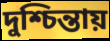
দুশ্চিন্তায়